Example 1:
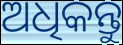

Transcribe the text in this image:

ଅଧିକନ୍ତୁ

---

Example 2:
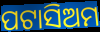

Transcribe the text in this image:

ପଟାସିଅମ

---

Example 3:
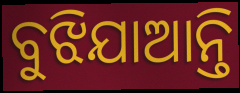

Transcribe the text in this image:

ବୁଝିଯାଆନ୍ତି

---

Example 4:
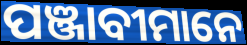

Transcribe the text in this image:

ପଞ୍ଜାବୀମାନେ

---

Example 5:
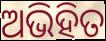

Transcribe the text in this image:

ଅଭିହିତ